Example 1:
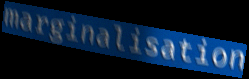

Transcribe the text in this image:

marginalisation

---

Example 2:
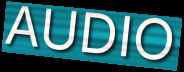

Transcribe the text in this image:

AUDIO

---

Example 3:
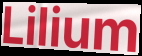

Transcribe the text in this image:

Lilium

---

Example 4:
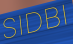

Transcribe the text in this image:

SIDBI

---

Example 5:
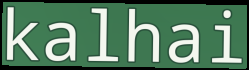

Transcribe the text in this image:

kalhai